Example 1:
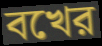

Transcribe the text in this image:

বখের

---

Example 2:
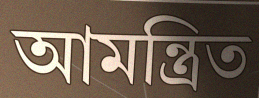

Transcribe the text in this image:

আমন্ত্রিত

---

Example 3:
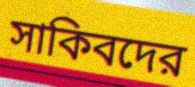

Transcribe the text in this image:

সাকিবদের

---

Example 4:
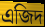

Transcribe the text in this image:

এজিদ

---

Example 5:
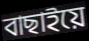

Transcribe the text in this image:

বাছাইয়ে